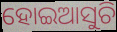
ହୋଇଆସୁଚି